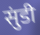
सुंडी